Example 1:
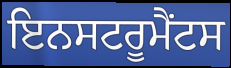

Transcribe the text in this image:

ਇਨਸਟਰੂਮੈਂਟਸ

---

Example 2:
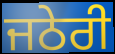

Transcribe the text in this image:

ਜਠੇਰੀ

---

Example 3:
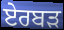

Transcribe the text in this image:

ਏਰਬੜ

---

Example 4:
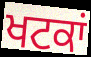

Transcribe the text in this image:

ਖਟਕਾਂ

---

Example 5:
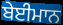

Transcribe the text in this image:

ਬੇਈਮਾਨ